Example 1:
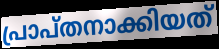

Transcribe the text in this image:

പ്രാപ്തനാക്കിയത്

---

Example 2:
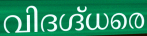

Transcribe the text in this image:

വിദഗ്ദ്ധരെ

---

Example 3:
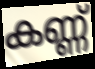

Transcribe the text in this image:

കണ്ണ്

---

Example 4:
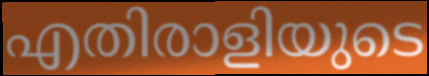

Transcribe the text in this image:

എതിരാളിയുടെ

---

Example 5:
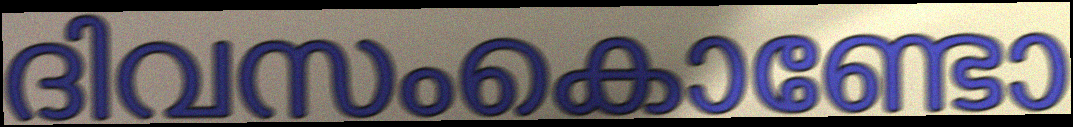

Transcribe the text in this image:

ദിവസംകൊണ്ടോ